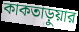
কাকতাড়ুয়ার